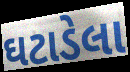
ઘટાડેલા